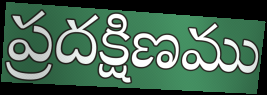
ప్రదక్షిణము